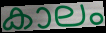
കാലം